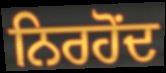
ਨਿਰਹੋਂਦ